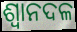
ଶ୍ୱାନଦଳ